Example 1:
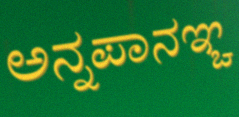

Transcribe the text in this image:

ಅನ್ನಪಾನಞ್ಚ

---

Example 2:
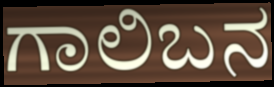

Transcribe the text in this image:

ಗಾಲಿಬನ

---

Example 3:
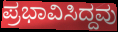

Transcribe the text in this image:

ಪ್ರಭಾವಿಸಿದ್ದವು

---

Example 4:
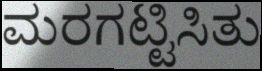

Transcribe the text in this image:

ಮರಗಟ್ಟಿಸಿತು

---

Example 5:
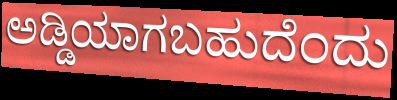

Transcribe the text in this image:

ಅಡ್ಡಿಯಾಗಬಹುದೆಂದು